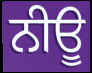
ਨੀਊ